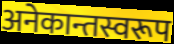
अनेकान्तस्वरूप